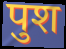
पुश